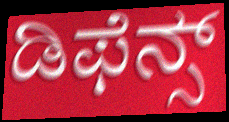
ಡಿಫೆನ್ಸ್